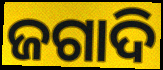
ଜଗାଦି